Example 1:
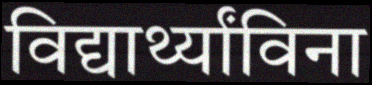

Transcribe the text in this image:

विद्यार्थ्यांविना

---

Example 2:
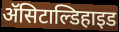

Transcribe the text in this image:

ॲसिटाल्डिहाइड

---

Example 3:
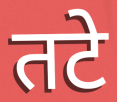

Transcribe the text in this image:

तटे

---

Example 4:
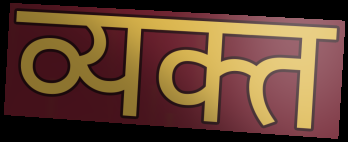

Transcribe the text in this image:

व्यक्‍त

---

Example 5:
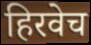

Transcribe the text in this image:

हिरवेच